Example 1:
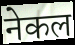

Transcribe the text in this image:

नेकल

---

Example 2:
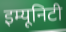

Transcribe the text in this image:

इम्‍यूनिटी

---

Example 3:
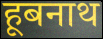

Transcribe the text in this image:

हूबनाथ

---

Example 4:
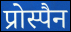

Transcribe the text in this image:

प्रोस्पैन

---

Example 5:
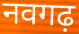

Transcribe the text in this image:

नवगढ़